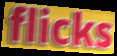
flicks